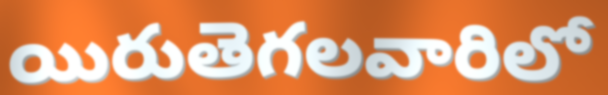
యిరుతెగలవారిలో